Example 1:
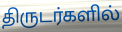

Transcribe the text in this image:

திருடர்களில்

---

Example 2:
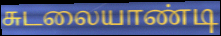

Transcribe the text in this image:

சுடலையாண்டி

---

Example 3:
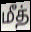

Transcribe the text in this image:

மீத்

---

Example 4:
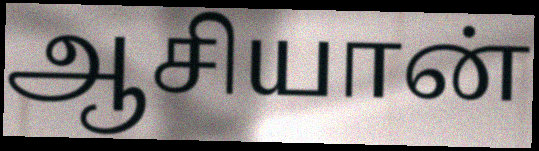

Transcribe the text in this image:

ஆசியான்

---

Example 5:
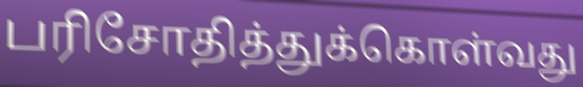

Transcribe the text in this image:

பரிசோதித்துக்கொள்வது